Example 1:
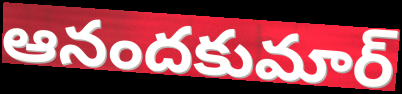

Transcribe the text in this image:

ఆనందకుమార్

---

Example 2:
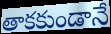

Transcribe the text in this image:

తాకకుండానే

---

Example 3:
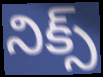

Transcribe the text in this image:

నిక్స్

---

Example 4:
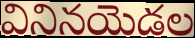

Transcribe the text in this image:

వినినయెడల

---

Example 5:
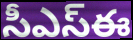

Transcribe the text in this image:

సీఎస్ఈ